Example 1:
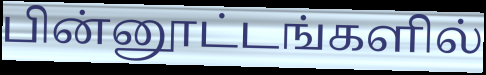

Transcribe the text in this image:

பின்னூட்டங்களில்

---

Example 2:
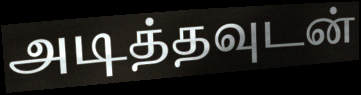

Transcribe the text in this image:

அடித்தவுடன்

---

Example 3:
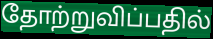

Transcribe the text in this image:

தோற்றுவிப்பதில்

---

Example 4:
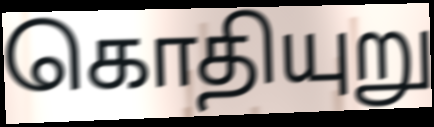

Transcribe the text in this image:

கொதியுறு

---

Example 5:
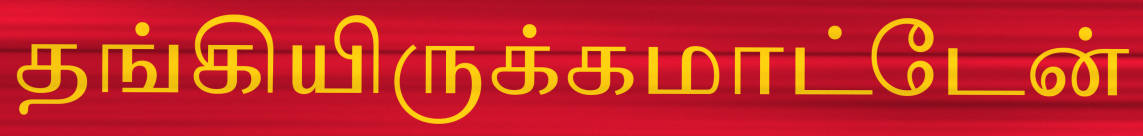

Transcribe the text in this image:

தங்கியிருக்கமாட்டேன்